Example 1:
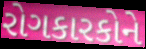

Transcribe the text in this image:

રોગકારકોને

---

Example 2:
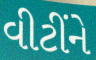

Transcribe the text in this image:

વીટીંને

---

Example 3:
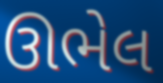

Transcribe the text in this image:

ઊભેલ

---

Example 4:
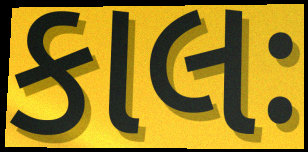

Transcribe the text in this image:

કાલઃ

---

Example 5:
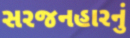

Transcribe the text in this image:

સરજનહારનું